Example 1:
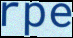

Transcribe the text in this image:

rpe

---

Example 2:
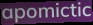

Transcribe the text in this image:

apomictic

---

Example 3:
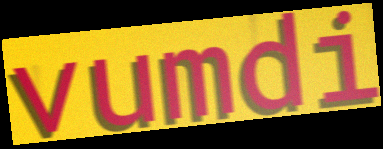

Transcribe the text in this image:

vumdi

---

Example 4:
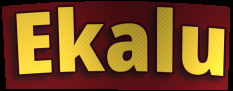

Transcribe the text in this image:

Ekalu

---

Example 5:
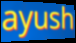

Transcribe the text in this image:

ayush